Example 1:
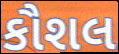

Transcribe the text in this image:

કૌશલ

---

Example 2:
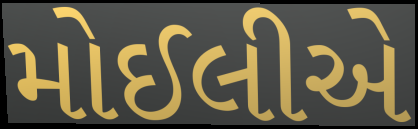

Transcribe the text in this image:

મોઈલીએ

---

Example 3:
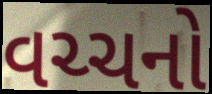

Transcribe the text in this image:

વચ્ચનો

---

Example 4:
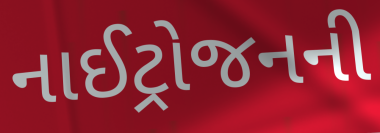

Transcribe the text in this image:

નાઈટ્રોજનની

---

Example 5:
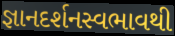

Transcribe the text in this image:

જ્ઞાનદર્શનસ્વભાવથી